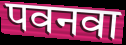
पवनवा